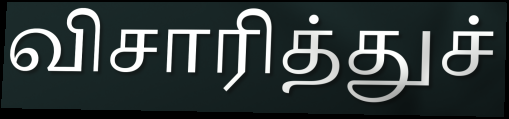
விசாரித்துச்